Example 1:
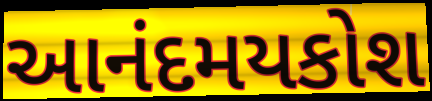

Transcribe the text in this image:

આનંદમયકોશ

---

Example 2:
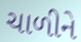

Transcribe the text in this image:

ચાળીને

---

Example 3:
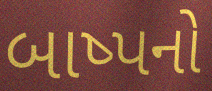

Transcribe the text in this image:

બાષ્પનો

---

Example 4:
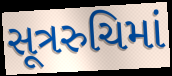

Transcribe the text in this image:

સૂત્રરુચિમાં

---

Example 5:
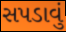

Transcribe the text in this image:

સપડાવું